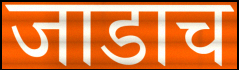
जाडाच